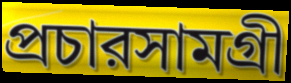
প্রচারসামগ্রী